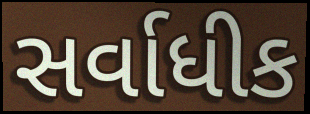
સર્વાધીક